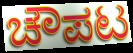
ಚೌಪಟ